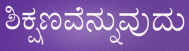
ಶಿಕ್ಷಣವೆನ್ನುವುದು